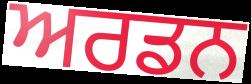
ਅਰਡਨ